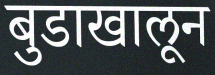
बुडाखालून